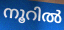
നൂറിൽ